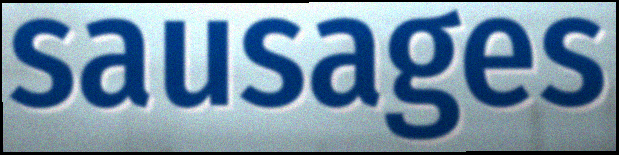
sausages